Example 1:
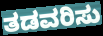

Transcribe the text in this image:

ತಡವರಿಸು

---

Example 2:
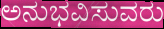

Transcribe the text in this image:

ಅನುಭವಿಸುವರು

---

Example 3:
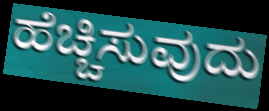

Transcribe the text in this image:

ಹೆಚ್ಚಿಸುವುದು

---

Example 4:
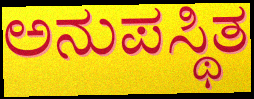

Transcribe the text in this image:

ಅನುಪಸ್ಥಿತ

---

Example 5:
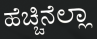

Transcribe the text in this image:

ಹೆಚ್ಚಿನೆಲ್ಲಾ